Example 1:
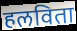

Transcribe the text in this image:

हलविता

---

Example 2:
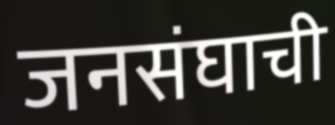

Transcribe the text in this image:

जनसंघाची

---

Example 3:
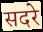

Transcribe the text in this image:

सदरे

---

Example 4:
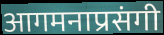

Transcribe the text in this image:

आगमनाप्रसंगी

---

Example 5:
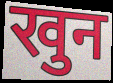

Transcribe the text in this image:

खुन